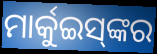
ମାର୍କୁଇସ୍‍ଙ୍କର